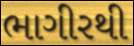
ભાગીરથી